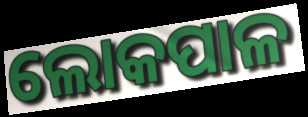
ଲୋକପାଳ